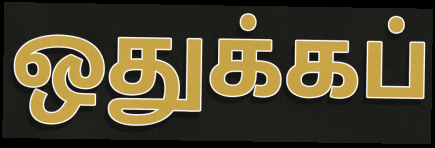
ஒதுக்கப்